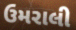
ઉમરાલી